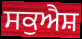
ਸਕੁਐਸ਼